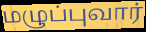
மழுப்புவார்